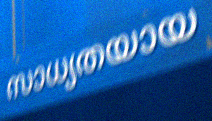
സാധ്യതയായ